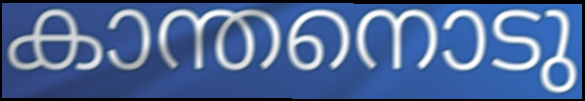
കാന്തനൊടു